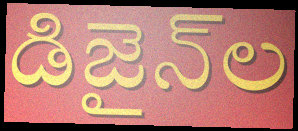
డిజైన్‌ల